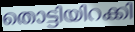
തൊട്ടിയിറക്കി